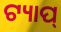
ଟ୍ୟାପ୍